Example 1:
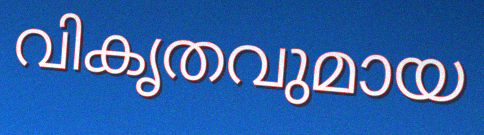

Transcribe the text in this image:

വികൃതവുമായ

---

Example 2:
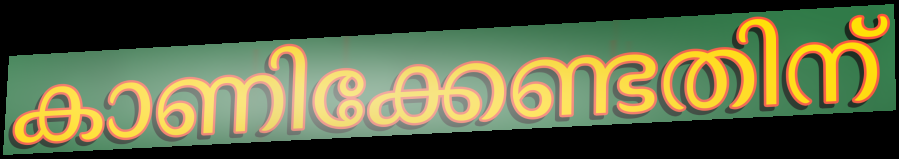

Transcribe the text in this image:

കാണിക്കേണ്ടതിന്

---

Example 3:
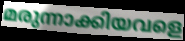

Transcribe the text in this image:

മരുന്നാക്കിയവളെ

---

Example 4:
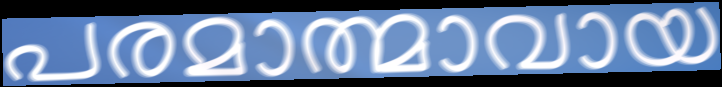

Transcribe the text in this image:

പരമാത്മാവായ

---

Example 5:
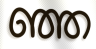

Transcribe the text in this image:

ഞ്ഞ